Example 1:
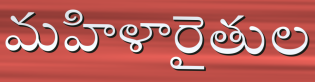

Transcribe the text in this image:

మహిళారైతుల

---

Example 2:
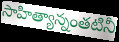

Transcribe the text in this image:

సాహిత్యాన్నంతటినీ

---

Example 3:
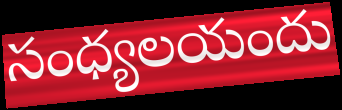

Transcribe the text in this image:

సంధ్యలయందు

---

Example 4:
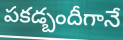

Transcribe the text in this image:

పకడ్బందీగానే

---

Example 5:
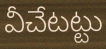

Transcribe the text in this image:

వీచేటట్టు